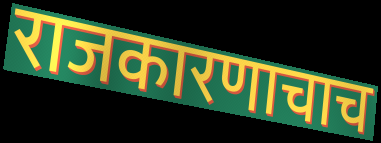
राजकारणाचाच